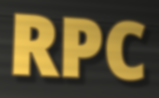
RPC